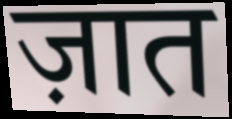
ज़ात